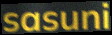
sasuni